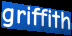
griffith